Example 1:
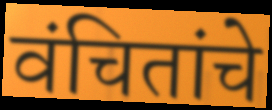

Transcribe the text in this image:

वंचितांचे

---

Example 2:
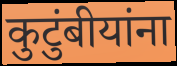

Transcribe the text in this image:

कुटुंबीयांना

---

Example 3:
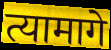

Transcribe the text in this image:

त्यामागे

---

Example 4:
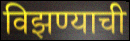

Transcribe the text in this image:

विझण्याची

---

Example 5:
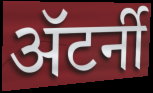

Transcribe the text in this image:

ॲटर्नी